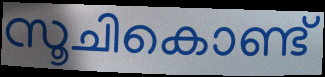
സൂചികൊണ്ട്